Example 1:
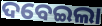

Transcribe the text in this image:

ଦବେଇଲା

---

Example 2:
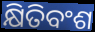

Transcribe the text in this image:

କ୍ଷିତିବଂଶ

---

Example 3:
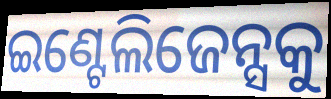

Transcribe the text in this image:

ଇଣ୍ଟେଲିଜେନ୍ସକୁ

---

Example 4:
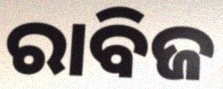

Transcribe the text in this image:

ରାବିଜ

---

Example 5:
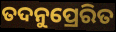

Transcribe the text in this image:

ତଦନୁପ୍ରେରିତ